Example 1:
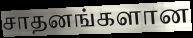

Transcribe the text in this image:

சாதனங்களான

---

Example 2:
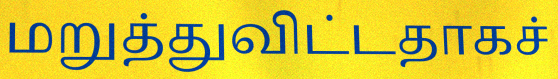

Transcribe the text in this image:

மறுத்துவிட்டதாகச்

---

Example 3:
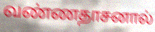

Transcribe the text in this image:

வண்ணதாசனால்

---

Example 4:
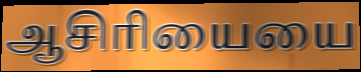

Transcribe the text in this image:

ஆசிரியையை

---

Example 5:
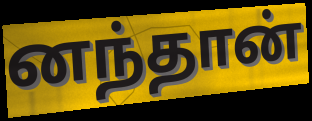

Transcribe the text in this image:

னந்தான்